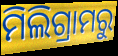
ମିଲିଗ୍ରାମରୁ